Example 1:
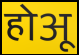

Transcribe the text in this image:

होअू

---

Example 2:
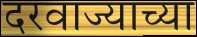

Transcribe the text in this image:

दरवाज्याच्या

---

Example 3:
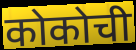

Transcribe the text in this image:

कोकोची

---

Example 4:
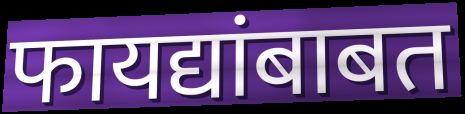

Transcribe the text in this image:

फायद्यांबाबत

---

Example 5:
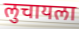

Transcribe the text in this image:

लुचायला